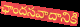
ఛాందసవాదానికి